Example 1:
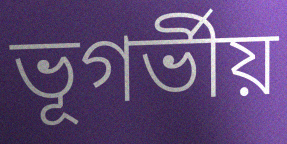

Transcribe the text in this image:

ভূগর্ভীয়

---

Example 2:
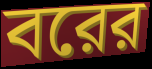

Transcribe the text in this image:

বরের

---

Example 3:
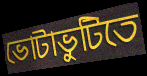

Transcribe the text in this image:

ভোটাভুটিতে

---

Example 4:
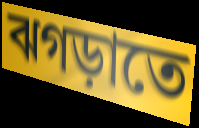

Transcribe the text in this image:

ঝগড়াতে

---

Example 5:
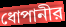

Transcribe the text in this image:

ধোপানীর